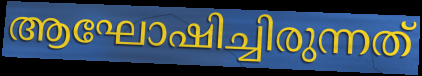
ആഘോഷിച്ചിരുന്നത്